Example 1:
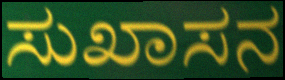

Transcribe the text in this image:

ಸುಖಾಸನ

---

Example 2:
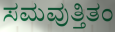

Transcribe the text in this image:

ಸಮವುತ್ತಿತಂ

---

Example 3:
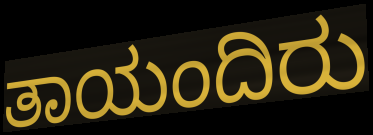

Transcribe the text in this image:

ತಾಯಂದಿರು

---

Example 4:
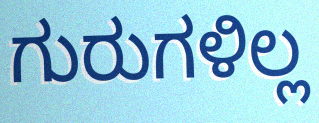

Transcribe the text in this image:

ಗುರುಗಳಿಲ್ಲ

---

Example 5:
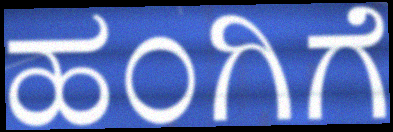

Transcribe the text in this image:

ಹಂಗಿಗೆ